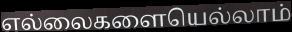
எல்லைகளையெல்லாம்